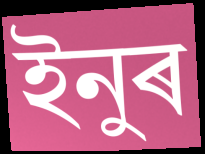
ইনুৰ